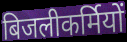
बिजलीकर्मियों